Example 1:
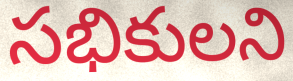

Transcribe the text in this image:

సభికులని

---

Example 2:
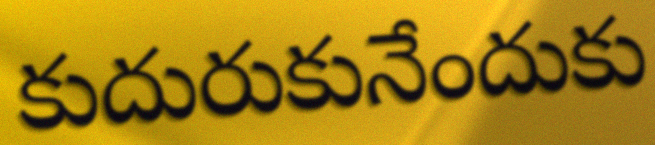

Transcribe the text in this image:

కుదురుకునేందుకు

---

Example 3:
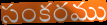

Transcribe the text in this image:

సంకరము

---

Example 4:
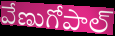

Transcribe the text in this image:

వేణుగోపాల్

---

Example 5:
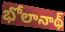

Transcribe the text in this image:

భోలానాథ్